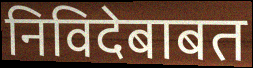
निविदेबाबत